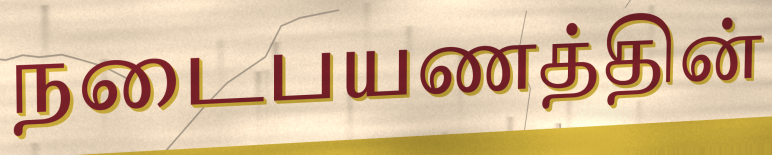
நடைபயணத்தின்